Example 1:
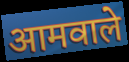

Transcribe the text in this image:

आमवाले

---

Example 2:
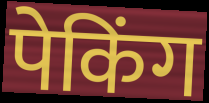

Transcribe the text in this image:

पेकिंग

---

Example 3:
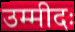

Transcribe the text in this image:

उम्मीदः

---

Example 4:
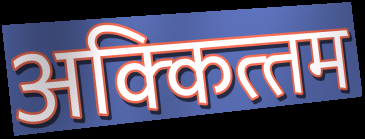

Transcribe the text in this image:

अक्‍कित्‍तम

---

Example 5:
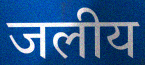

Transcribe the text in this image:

जलीय